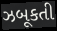
ઝબૂકતી